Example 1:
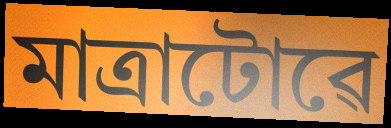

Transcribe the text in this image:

মাত্ৰাটোৱে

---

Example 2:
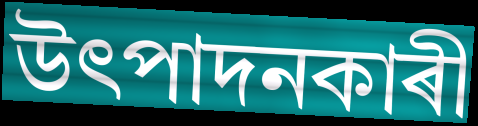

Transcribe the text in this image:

উৎপাদনকাৰী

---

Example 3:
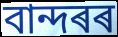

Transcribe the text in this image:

বান্দৰৰ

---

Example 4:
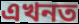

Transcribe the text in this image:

এখনত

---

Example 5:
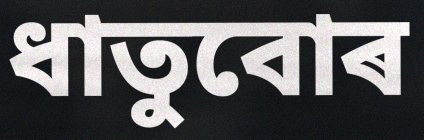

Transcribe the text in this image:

ধাতুবোৰ